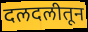
दलदलीतून